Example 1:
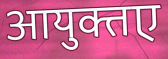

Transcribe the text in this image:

आयुक्तए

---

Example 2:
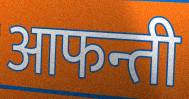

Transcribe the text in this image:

आफन्ती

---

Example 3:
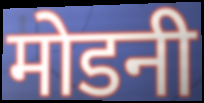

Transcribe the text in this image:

मोडनी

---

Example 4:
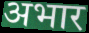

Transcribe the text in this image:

अभार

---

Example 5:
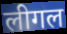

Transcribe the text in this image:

लीगल